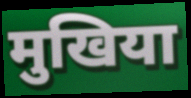
मुखिया